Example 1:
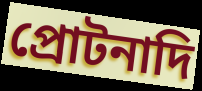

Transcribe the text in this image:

প্রোটনাদি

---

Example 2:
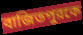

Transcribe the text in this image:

বাজিতপুরকে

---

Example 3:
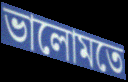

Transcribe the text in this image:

ভালোমতে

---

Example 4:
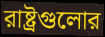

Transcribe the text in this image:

রাষ্ট্রগুলোর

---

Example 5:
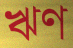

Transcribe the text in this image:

ঋণ